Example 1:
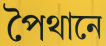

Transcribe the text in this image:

পৈথানে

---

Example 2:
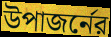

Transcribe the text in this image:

উপাজর্নের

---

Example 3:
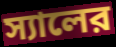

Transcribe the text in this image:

স্যালের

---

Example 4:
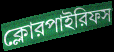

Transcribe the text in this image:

ক্লোরপাইরিফস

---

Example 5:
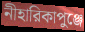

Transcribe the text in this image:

নীহারিকাপুঞ্জে